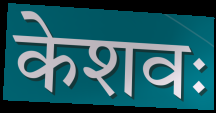
केशवः